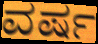
ವರ್ಷ